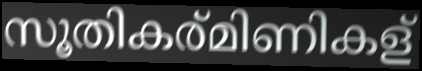
സൂതികര്മിണികള്